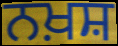
ਨਖ਼ਸ਼